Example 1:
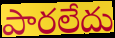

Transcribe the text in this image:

పారలేదు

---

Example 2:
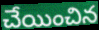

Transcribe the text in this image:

చేయించిన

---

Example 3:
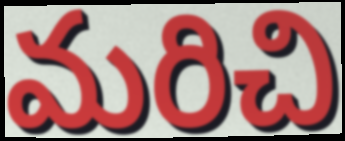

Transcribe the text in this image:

మరిచి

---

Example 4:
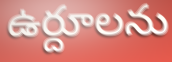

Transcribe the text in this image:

ఉర్దూలను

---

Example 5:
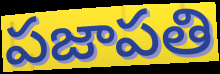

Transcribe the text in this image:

పజాపతి